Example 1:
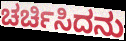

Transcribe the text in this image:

ಚರ್ಚಿಸಿದನು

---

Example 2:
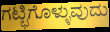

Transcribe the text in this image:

ಗಟ್ಟಿಗೊಳ್ಳುವುದು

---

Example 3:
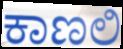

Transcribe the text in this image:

ಕಾಣಲಿ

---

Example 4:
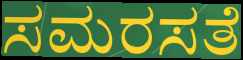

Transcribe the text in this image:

ಸಮರಸತೆ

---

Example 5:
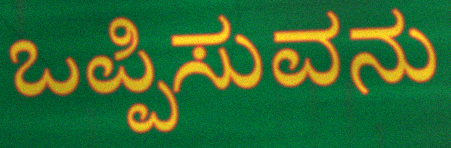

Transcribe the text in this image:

ಒಪ್ಪಿಸುವನು